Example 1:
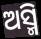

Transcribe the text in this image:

ଅସ୍ମି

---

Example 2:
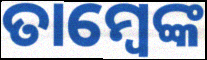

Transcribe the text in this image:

ତାମ୍ବେଙ୍କ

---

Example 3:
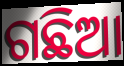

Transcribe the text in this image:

ଗଛିଆ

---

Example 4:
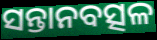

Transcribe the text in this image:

ସନ୍ତାନବତ୍ସଳ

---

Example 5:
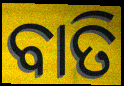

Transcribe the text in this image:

ବାତି